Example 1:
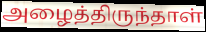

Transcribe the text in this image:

அழைத்திருந்தாள்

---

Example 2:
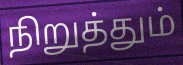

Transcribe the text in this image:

நிறுத்தும்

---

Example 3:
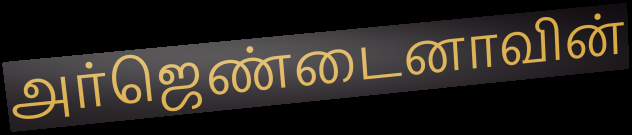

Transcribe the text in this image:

அர்ஜெண்டைனாவின்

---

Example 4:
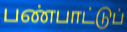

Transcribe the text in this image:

பண்பாட்டுப்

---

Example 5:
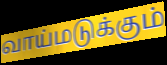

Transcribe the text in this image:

வாய்மடுக்கும்